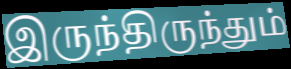
இருந்திருந்தும்